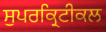
ਸੁਪਰਕ੍ਰਿਟੀਕਲ